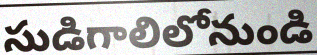
సుడిగాలిలోనుండి